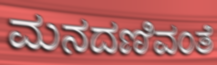
ಮನದಣಿವಂತೆ